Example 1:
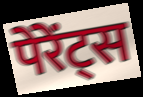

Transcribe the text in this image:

पेरेंट्स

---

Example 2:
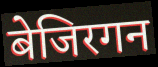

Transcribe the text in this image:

बेजिरगन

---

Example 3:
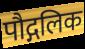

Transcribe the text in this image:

पौद्गलिक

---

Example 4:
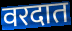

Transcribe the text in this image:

वरदात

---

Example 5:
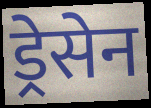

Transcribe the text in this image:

ड्रेसेन